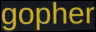
gopher